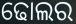
ଢୋଲର